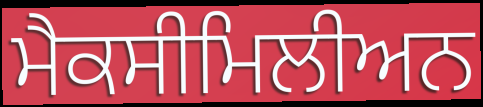
ਮੈਕਸੀਮਿਲੀਅਨ